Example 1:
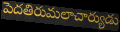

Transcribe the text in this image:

పెదతిరుమలాచార్యుడు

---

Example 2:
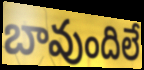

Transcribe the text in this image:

బావుందిలే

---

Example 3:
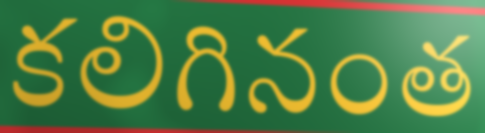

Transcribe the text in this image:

కలిగినంత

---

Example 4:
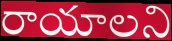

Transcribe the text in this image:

రాయాలని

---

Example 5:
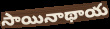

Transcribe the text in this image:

సాయినాథాయ